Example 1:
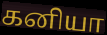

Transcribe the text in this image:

கனியா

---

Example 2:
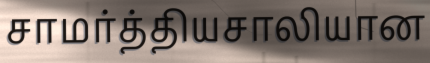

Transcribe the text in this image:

சாமர்த்தியசாலியான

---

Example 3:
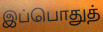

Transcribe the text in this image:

இப்பொதுத்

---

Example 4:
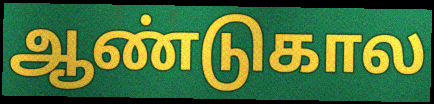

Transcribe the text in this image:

ஆண்டுகால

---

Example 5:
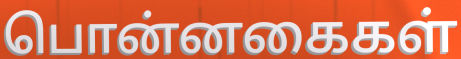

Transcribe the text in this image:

பொன்னகைகள்